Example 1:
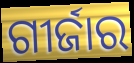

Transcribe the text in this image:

ଗୀର୍ଜାର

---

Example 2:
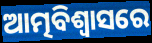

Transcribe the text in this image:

ଆତ୍ମବିଶ୍ଵାସରେ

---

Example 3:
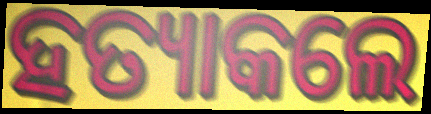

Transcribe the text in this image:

ହତ୍ୟାକଲେ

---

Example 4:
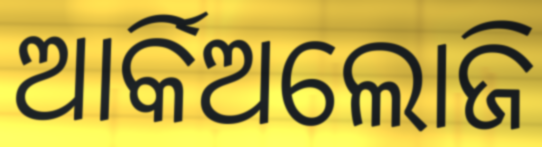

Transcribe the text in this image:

ଆର୍କିଅଲୋଜି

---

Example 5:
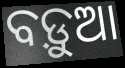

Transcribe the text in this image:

ବଡ଼ୁଆ